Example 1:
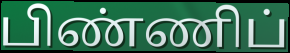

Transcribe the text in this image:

பிண்ணிப்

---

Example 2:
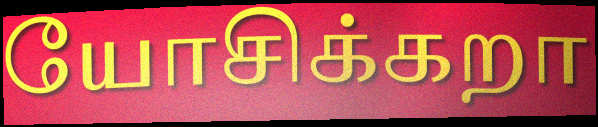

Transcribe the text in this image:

யோசிக்கறா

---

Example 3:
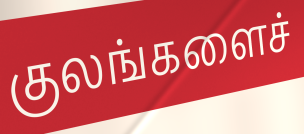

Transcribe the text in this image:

குலங்களைச்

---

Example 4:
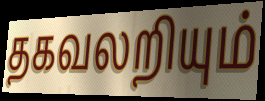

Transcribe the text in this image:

தகவலறியும்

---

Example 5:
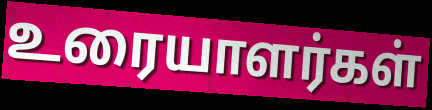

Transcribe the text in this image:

உரையாளர்கள்